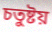
চতুষ্টয়